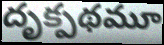
దృక్పథమూ